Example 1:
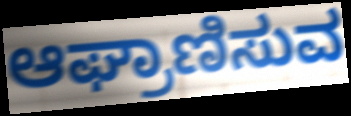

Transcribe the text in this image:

ಆಘ್ರಾಣಿಸುವ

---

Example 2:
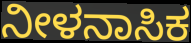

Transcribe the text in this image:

ನೀಳನಾಸಿಕ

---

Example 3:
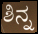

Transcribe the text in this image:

ಶಿನ್ನ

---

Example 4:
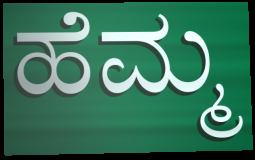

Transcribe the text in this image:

ಹೆಮ್ಮ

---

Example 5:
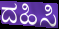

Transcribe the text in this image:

ದಹಿಸಿ